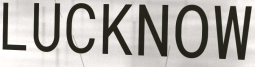
LUCKNOW